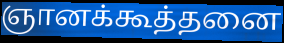
ஞானக்கூத்தனை